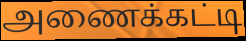
அணைக்கட்டி